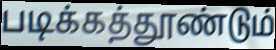
படிக்கத்தூண்டும்